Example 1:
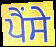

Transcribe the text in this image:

ਪੈਂਸੇ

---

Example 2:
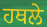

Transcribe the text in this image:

ਹਥਲੇ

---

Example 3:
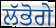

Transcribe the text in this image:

ਲੱਭੋਗੇ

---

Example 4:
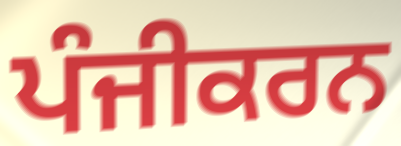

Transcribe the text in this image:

ਪੰਜੀਕਰਨ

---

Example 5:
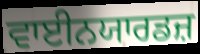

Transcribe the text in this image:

ਵਾਈਨਯਾਰਡਜ਼